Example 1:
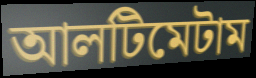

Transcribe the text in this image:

আলটিমেটাম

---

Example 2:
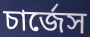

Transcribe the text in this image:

চার্জেস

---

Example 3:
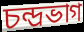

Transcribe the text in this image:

চন্দ্রভাগ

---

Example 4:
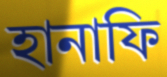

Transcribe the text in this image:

হানাফি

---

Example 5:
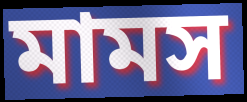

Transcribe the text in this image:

মামস